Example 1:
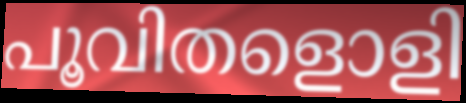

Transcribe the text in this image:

പൂവിതളൊളി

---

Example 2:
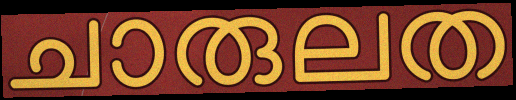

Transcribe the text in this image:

ചാരുലത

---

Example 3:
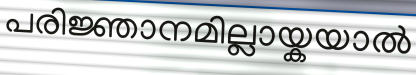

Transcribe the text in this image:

പരിജ്ഞാനമില്ലായ്കയാൽ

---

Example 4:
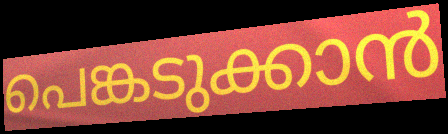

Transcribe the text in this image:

പെങ്കടുക്കാൻ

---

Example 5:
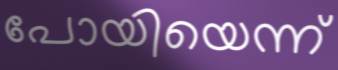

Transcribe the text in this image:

പോയിയെന്ന്